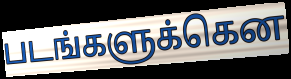
படங்களுக்கென